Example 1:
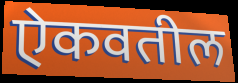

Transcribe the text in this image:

ऐकवतील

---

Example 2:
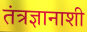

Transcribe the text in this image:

तंत्रज्ञानाशी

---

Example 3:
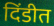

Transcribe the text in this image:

दिंडीत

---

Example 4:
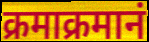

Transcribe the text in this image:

क्रमाक्रमानं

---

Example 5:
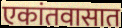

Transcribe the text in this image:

एकांतवासात